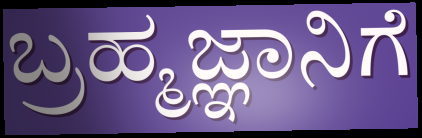
ಬ್ರಹ್ಮಜ್ಞಾನಿಗೆ